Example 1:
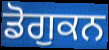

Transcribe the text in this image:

ਡੋਗੁਕਨ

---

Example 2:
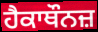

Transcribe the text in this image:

ਹੈਕਾਥੌਨਜ਼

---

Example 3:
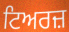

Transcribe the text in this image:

ਟਿਅਰਜ਼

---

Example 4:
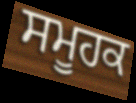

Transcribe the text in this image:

ਸਮੂਹਕ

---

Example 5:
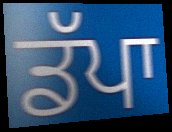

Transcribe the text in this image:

ਡੱਪਾ